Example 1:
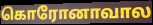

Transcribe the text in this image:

கொரோனாவால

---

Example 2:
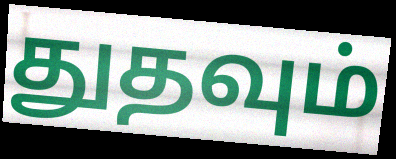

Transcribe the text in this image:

துதவும்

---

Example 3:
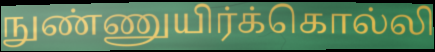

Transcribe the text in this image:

நுண்ணுயிர்க்கொல்லி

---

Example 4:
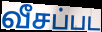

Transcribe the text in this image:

வீசப்பட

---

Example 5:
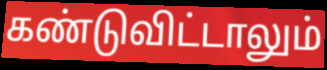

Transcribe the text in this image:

கண்டுவிட்டாலும்